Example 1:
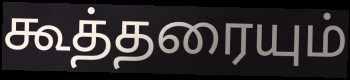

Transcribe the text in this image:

கூத்தரையும்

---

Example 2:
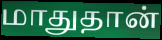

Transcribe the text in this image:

மாதுதான்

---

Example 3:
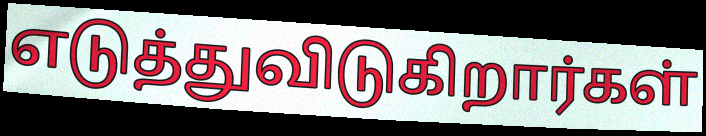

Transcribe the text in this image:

எடுத்துவிடுகிறார்கள்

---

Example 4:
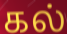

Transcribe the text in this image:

கல்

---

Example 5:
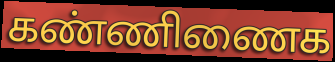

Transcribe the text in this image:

கண்ணிணைக